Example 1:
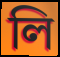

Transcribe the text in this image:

লি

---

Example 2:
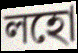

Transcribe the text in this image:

লহো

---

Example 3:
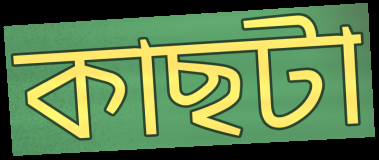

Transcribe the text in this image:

কাছটা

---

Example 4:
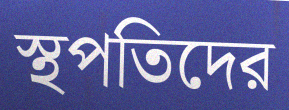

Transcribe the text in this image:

স্থপতিদের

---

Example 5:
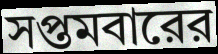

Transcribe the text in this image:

সপ্তমবারের